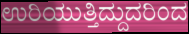
ಉರಿಯುತ್ತಿದ್ದುದರಿಂದ